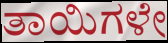
ತಾಯಿಗಳೇ